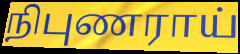
நிபுணராய்